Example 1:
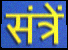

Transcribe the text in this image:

संत्रें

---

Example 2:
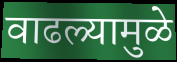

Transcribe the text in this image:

वाढल्यामुळे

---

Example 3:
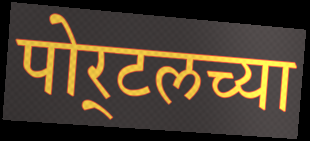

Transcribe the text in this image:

पोर्टलच्या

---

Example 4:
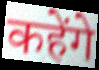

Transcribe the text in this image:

कहेंगे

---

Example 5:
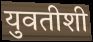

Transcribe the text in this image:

युवतीशी